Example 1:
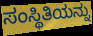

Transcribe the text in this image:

ಸಂಸ್ಥಿತಿಯನ್ನು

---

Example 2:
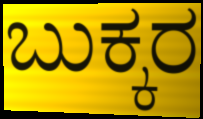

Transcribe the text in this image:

ಬುಕ್ಕರ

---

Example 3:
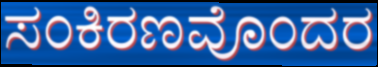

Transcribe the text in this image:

ಸಂಕಿರಣವೊಂದರ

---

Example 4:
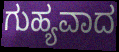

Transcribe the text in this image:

ಗುಹ್ಯವಾದ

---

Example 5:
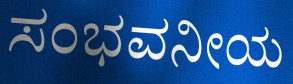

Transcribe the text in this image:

ಸಂಭವನೀಯ